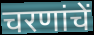
चरणांचें